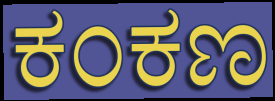
ಕಂಕಣ